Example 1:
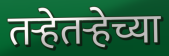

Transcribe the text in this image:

तऱ्हेतऱ्हेच्या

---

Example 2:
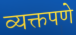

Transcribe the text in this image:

व्यक्तपणे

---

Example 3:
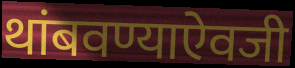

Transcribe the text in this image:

थांबवण्याऐवजी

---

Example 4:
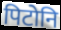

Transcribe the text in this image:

पिटोनि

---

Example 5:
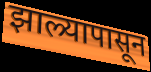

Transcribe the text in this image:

झाल्यापासून